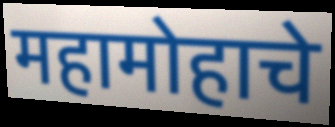
महामोहाचे